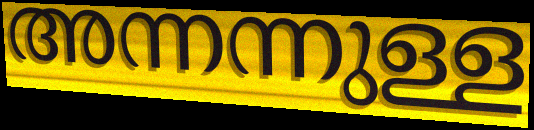
അന്നന്നുള്ള